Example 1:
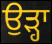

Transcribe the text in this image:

ਉੜ੍ਹਾ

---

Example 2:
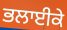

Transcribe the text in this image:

ਭਲਾਈਕੇ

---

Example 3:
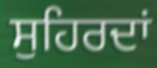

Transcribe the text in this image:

ਸੁਹਿਰਦਾਂ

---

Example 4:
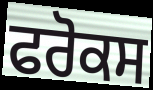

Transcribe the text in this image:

ਫਰੋਕਸ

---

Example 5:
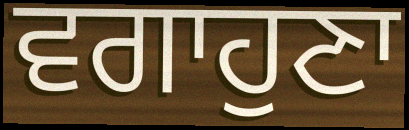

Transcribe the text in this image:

ਵਗਾਹੁਣਾ